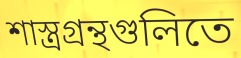
শাস্ত্রগ্রন্থগুলিতে